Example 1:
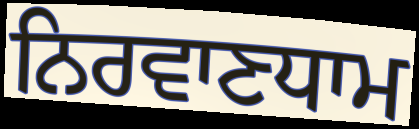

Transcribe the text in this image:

ਨਿਰਵਾਣਧਾਮ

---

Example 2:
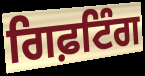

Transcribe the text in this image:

ਗਿਫ਼ਟਿੰਗ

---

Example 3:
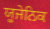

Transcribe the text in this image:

ਯੂਜੇਨਿਕ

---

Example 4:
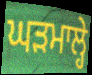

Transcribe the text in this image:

ਘੜਮਾਲ੍ਹੇ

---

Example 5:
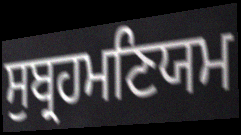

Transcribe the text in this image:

ਸੁਬ੍ਰਹਮਣਿਯਮ